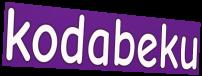
kodabeku